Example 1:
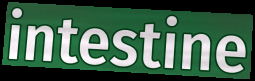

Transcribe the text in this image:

intestine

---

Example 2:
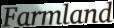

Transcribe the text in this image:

Farmland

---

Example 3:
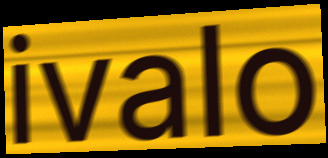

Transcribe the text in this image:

ivalo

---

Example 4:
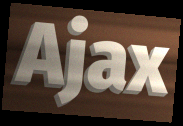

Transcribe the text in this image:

Ajax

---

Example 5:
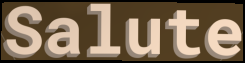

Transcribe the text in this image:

Salute